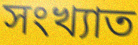
সংখ্যাত